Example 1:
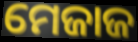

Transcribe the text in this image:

ମେଜାଜ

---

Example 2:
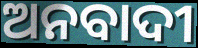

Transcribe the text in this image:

ଅନବାଦୀ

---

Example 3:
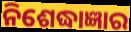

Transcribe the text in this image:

ନିଶେଦ୍ଧାଜ୍ଞାର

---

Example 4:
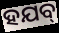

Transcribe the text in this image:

ହଯବ୍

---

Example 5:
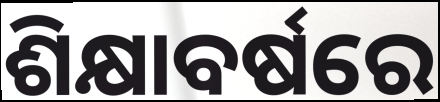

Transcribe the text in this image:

ଶିକ୍ଷାବର୍ଷରେ